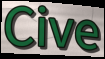
Cive